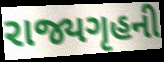
રાજ્યગૃહની